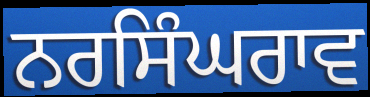
ਨਰਸਿੰਘਰਾਵ